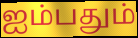
ஐம்பதும்